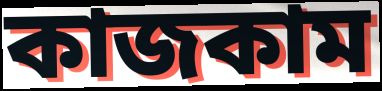
কাজকাম